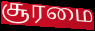
சூரமை